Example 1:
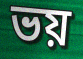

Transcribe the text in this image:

ভয়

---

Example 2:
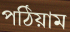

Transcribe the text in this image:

পঠিয়াম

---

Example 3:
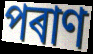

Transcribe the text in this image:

পৰাণ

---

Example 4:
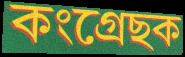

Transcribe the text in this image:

কংগ্ৰেছক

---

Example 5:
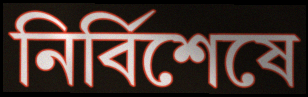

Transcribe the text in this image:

নিৰ্বিশেষে